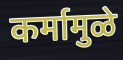
कर्मामुळे